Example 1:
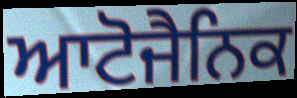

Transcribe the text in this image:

ਆਟੋਜੈਨਿਕ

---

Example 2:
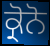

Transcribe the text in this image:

ਕ੍ਰੋਨੋ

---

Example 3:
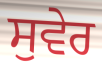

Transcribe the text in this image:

ਸੁਵੇਰ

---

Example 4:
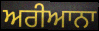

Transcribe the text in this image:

ਅਰੀਆਨਾ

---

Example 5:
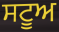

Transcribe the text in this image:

ਸਟੂਅ